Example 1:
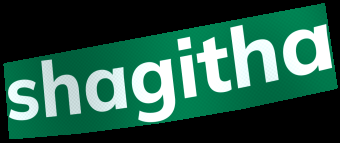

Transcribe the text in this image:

shagitha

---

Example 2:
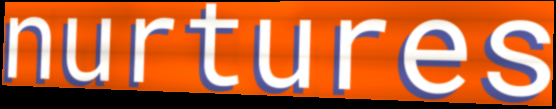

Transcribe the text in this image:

nurtures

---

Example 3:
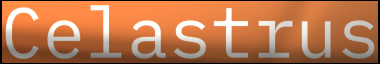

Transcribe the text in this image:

Celastrus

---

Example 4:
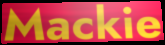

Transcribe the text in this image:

Mackie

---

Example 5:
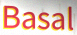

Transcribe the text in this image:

Basal